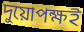
দুয়োপক্ষই